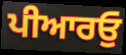
ਪੀਆਰਓੁ